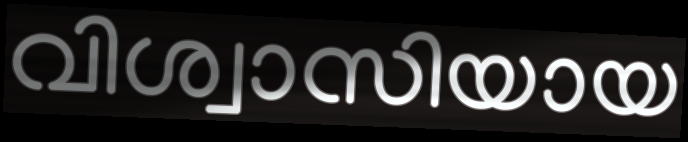
വിശ്വാസിയായ